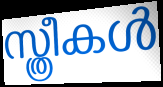
സ്ത്രീകൾ